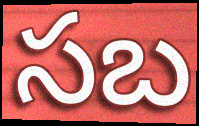
సబ